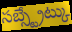
సబ్స్ట్రేట్కు